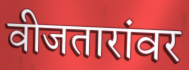
वीजतारांवर